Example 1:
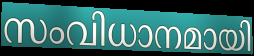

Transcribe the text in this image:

സംവിധാനമായി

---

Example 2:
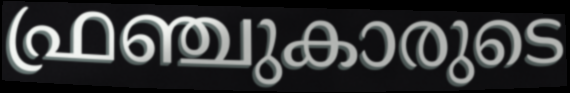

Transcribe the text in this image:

ഫ്രഞ്ചുകാരുടെ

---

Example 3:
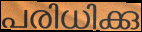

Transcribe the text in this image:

പരിധിക്കു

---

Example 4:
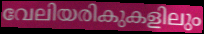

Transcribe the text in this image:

വേലിയരികുകളിലും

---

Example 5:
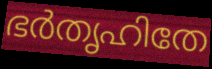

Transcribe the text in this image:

ഭർതൃഹിതേ